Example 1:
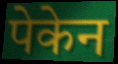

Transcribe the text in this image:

पेकेन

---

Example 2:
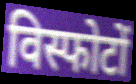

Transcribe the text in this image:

विस्फोटों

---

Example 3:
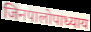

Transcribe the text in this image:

जिनपालोपाध्याय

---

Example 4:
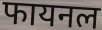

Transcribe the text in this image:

फायनल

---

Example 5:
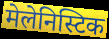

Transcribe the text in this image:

मेलेनिस्टिक